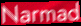
Narmad